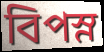
বিপস্ন